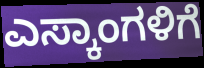
ಎಸ್ಕಾಂಗಳಿಗೆ